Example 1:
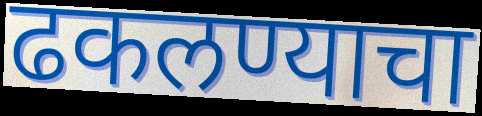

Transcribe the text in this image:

ढकलण्याचा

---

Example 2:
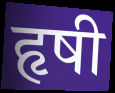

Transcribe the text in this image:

हृषी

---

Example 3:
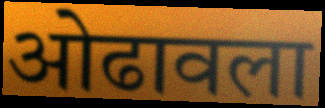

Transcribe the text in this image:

ओढावला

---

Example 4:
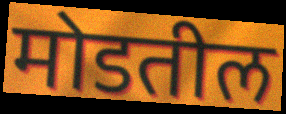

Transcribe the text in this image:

मोडतील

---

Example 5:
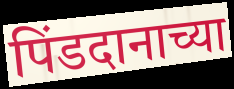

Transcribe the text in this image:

पिंडदानाच्या